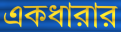
একধারার